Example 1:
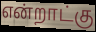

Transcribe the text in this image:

என்றாட்கு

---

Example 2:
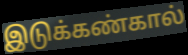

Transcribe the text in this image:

இடுக்கண்கால்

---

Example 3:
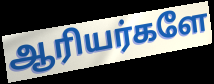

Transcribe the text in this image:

ஆரியர்களே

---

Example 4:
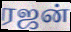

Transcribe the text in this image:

ரஜன்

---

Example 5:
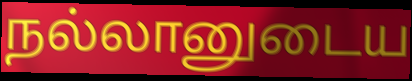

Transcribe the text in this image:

நல்லானுடைய